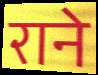
राने